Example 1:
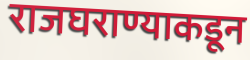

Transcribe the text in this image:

राजघराण्याकडून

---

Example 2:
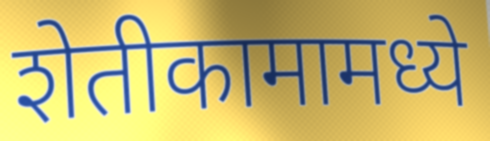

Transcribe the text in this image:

शेतीकामामध्ये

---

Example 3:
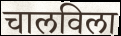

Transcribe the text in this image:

चालविला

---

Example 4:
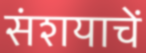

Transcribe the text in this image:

संशयाचें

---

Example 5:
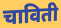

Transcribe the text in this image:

चाविती